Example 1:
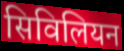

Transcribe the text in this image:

सिविलियन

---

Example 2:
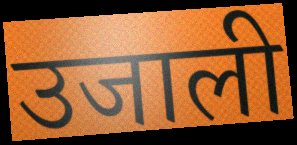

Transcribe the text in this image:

उजाली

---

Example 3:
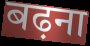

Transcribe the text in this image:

बढ़ना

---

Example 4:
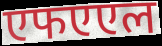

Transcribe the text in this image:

एफएएल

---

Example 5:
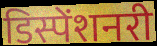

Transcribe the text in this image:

डिस्पेंशनरी